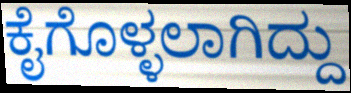
ಕೈಗೊಳ್ಳಲಾಗಿದ್ದು